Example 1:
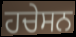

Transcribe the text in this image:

ਹਚੇਸਨ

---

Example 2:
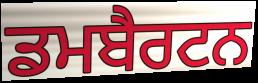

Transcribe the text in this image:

ਡਮਬੈਰਟਨ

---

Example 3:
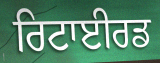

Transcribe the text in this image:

ਰਿਟਾਈਰਡ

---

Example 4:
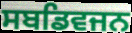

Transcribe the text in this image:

ਸਬਡਿਵਜਨ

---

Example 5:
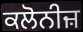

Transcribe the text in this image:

ਕਲੋਨੀਜ਼